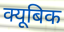
क्यूबिक